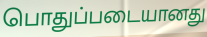
பொதுப்படையானது